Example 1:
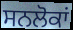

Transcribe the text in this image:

ਸਨਲੋਕਾਂ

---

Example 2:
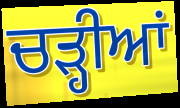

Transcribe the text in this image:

ਚੜ੍ਹੀਆਂ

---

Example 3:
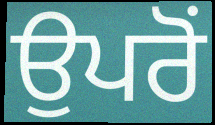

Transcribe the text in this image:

ਉਪਰੋਂ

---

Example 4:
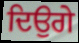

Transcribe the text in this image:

ਦਿਉਗੇ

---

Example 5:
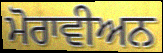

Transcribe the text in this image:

ਮੋਰਾਵੀਅਨ